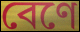
বেণে